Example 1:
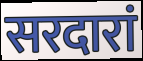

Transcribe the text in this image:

सरदारां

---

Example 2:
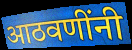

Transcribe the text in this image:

आठवणींनी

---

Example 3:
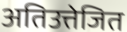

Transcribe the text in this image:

अतिउत्तेजित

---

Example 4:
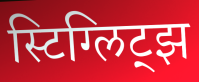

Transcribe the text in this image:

स्टिग्लिट्झ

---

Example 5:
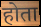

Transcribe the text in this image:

होता